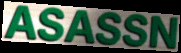
ASASSN